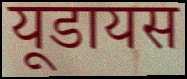
यूडायस